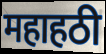
महाहठी